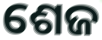
ଶେଜ